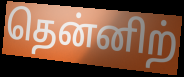
தென்னிற்